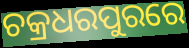
ଚକ୍ରଧରପୁରରେ